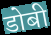
डोबी